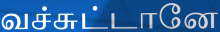
வச்சுட்டானே